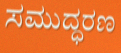
ಸಮುದ್ಧರಣ